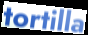
tortilla